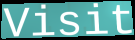
Visit